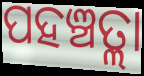
ପହଞ୍ଚତ୍ଲା